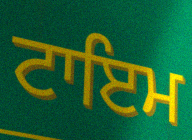
ਟਾਇਮ